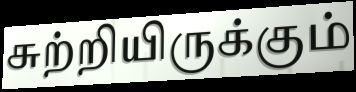
சுற்றியிருக்கும்